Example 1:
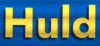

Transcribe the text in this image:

Huld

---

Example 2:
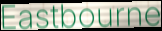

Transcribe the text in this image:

Eastbourne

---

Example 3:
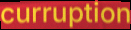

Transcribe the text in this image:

curruption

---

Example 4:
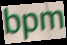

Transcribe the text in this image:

bpm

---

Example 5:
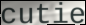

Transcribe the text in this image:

cutie